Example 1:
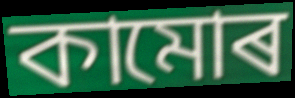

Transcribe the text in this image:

কামোৰ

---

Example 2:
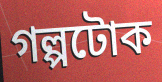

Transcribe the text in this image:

গল্পটোক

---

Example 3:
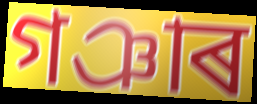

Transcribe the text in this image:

গঞাৰ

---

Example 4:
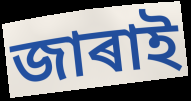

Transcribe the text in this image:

জাৰাই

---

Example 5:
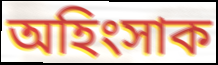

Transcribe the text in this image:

অহিংসাক